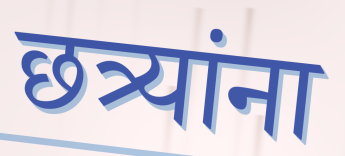
छत्र्यांना